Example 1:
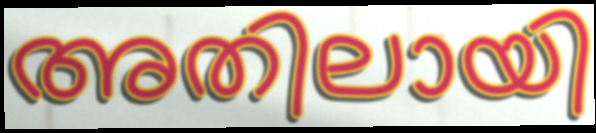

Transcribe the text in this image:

അതിലായി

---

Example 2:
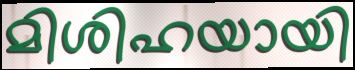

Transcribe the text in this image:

മിശിഹയായി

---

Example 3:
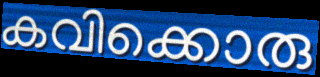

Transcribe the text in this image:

കവിക്കൊരു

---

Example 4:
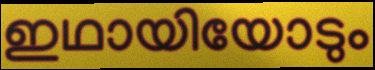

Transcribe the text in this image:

ഇഥായിയോടും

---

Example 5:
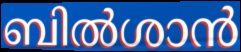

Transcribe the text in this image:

ബിൽശാൻ